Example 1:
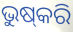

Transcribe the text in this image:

ଭୁଷ୍‍କରି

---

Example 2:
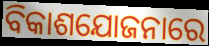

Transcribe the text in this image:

ବିକାଶଯୋଜନାରେ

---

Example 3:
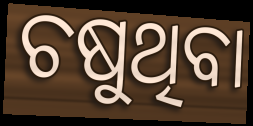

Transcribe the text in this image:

ଚଷୁଥିବା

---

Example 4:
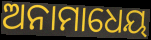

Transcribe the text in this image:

ଅନାମାଧେୟ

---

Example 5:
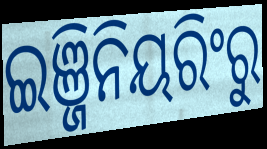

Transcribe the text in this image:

ଇଞ୍ଜିନିୟରିଂରୁ